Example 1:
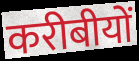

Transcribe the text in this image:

करीबीयों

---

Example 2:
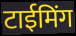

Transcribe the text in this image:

टाईमिंग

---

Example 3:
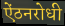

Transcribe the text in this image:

ऐंठनरोधी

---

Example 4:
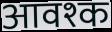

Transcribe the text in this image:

आवश्क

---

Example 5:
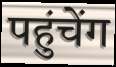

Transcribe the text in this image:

पहुंचेंग